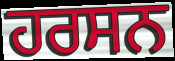
ਹਰਸਨ